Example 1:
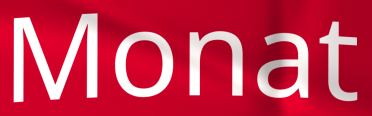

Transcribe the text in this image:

Monat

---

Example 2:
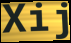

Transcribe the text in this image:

Xij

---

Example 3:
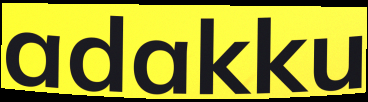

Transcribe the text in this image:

adakku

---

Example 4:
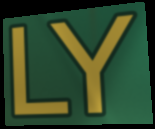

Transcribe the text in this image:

LY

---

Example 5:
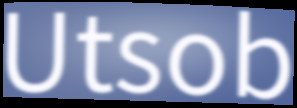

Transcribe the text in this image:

Utsob